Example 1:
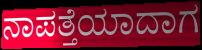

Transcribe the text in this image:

ನಾಪತ್ತೆಯಾದಾಗ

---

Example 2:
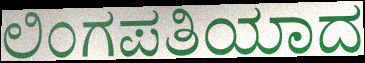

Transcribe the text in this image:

ಲಿಂಗಪತಿಯಾದ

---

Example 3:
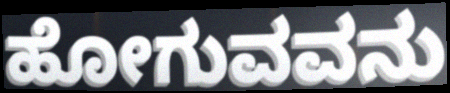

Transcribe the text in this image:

ಹೋಗುವವನು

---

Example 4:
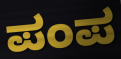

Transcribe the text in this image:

ಪಂಪ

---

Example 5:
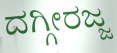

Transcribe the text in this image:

ದಗ್ಗೀರಜ್ಜ